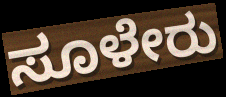
ಸೂಳೇರು